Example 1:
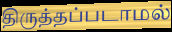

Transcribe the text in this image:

திருத்தப்படாமல்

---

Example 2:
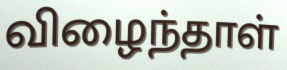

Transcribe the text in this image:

விழைந்தாள்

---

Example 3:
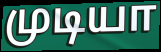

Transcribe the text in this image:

முடியா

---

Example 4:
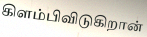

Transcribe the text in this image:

கிளம்பிவிடுகிறான்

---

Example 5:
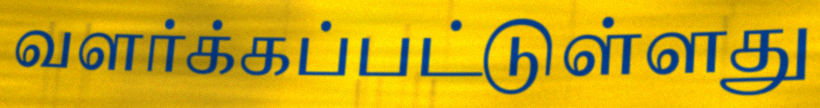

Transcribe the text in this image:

வளர்க்கப்பட்டுள்ளது